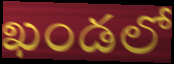
ఖండలో